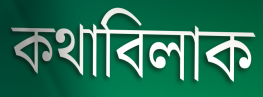
কথাবিলাক